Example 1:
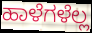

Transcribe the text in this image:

ಹಾಳೆಗಳೆಲ್ಲ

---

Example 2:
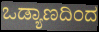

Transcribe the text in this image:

ಒಡ್ಯಾಣದಿಂದ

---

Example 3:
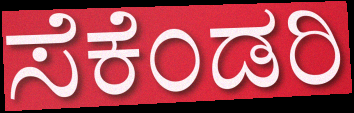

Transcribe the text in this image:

ಸೆಕೆಂಡರಿ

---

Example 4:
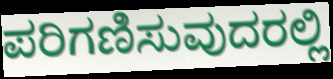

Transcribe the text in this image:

ಪರಿಗಣಿಸುವುದರಲ್ಲಿ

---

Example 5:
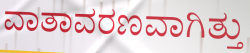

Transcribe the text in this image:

ವಾತಾವರಣವಾಗಿತ್ತು